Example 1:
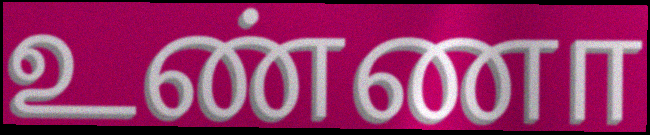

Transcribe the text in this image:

உண்ணா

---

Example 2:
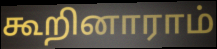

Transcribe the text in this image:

கூறினாராம்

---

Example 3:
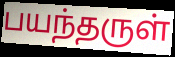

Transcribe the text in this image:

பயந்தருள்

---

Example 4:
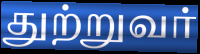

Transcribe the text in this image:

துற்றுவர்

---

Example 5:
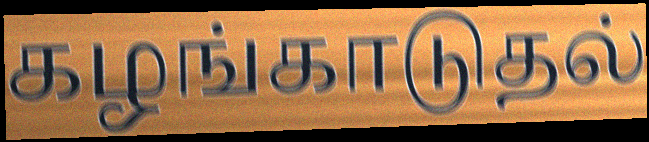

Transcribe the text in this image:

கழங்காடுதல்